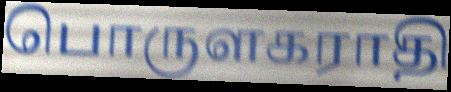
பொருளகராதி